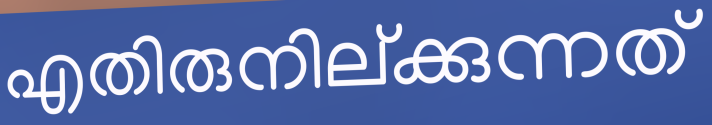
എതിരുനില്ക്കുന്നത്